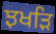
ਝਖੜਿ